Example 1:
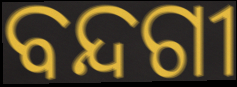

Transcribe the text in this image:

ବନ୍ଦଗୀ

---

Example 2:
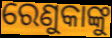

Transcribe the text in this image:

ରେଣୁକାଙ୍କୁ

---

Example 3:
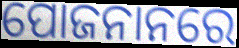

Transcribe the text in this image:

ପୋଜନାନରେ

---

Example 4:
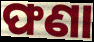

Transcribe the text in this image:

ଫଣା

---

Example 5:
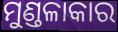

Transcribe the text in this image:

ମୁଣ୍ଡଳାକାର